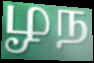
ழந